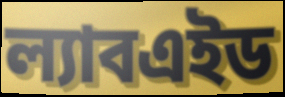
ল্যাবএইড